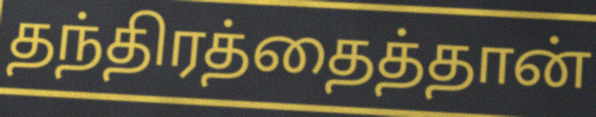
தந்திரத்தைத்தான்